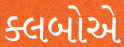
ક્લબોએ